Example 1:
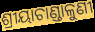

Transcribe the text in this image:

ଶ୍ରୀୟାଚାଣ୍ଡାଳୁଣୀ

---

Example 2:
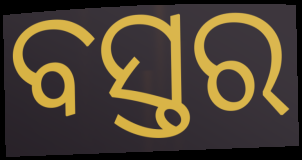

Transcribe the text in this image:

ବସ୍ତର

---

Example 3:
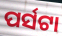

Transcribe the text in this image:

ପର୍ସଟା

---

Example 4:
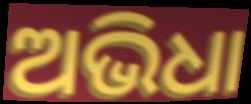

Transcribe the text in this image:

ଅଭିଧା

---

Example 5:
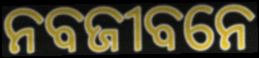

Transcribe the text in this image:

ନବଜୀବନେ